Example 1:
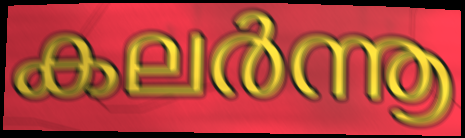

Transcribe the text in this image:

കലർന്നൂ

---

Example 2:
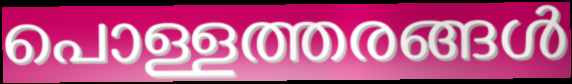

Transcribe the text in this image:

പൊള്ളത്തരങ്ങൾ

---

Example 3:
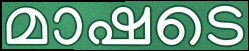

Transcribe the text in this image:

മാഷടെ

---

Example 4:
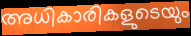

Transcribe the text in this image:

അധികാരികളുടെയും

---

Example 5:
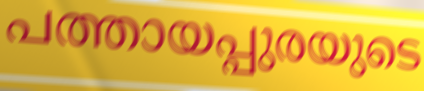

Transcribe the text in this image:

പത്തായപ്പുരയുടെ